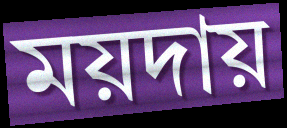
ময়দায়